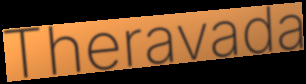
Theravada